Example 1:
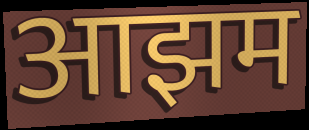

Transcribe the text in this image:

आझम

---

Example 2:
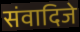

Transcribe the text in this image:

संवादिजे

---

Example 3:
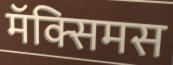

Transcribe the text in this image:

मॅक्सिमस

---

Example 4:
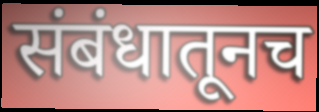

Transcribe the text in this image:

संबंधातूनच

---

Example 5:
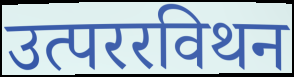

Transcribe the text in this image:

उत्पररविथन